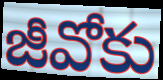
జీవోకు